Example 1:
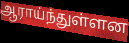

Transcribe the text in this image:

ஆராய்ந்துள்ளன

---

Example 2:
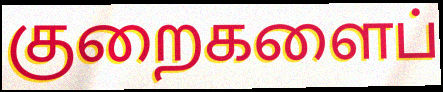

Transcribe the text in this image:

குறைகளைப்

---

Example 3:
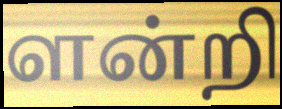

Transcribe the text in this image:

ளன்றி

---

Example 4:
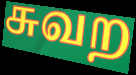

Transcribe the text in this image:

சுவற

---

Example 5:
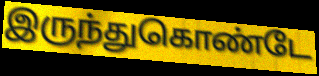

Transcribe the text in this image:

இருந்துகொண்டே